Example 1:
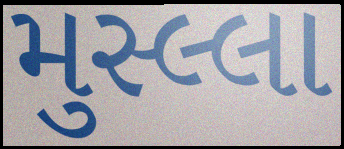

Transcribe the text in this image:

મુસ્લ્લા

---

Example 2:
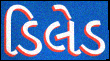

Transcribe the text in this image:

ડિલેડ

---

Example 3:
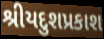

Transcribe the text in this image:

શ્રીયદુશપ્રકાશ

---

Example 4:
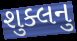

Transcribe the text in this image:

શુક્લનુ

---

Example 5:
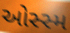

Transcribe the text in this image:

ઓસ્સ્મ